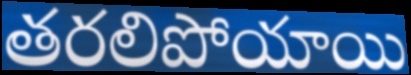
తరలిపోయాయి